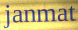
janmat